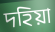
দহিয়া